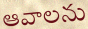
ఆవాలను